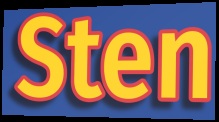
Sten